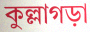
কুল্লাগড়া